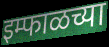
इम्फाळच्या